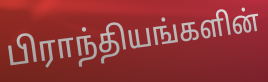
பிராந்தியங்களின்